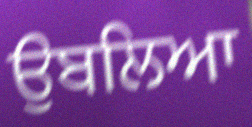
ਉਬਲਿਆ